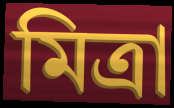
মিত্রা